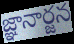
జ్ఞానార్జన